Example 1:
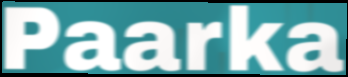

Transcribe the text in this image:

Paarka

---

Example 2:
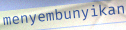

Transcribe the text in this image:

menyembunyikan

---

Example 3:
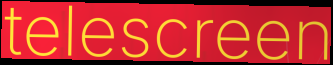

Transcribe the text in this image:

telescreen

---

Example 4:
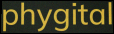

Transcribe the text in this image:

phygital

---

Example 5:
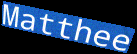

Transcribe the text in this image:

Matthee